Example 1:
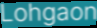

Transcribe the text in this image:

Lohgaon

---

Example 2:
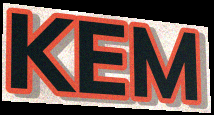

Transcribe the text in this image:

KEM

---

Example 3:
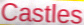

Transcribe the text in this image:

Castles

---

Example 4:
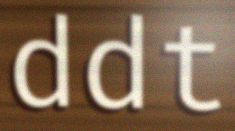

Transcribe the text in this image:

ddt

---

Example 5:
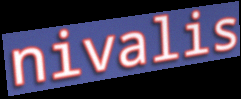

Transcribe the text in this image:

nivalis